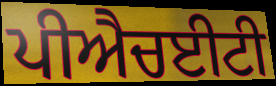
ਪੀਐਚਈਟੀ